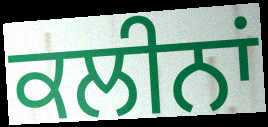
ਕਲੀਨਾਂ